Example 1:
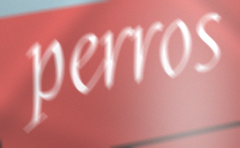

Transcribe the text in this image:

perros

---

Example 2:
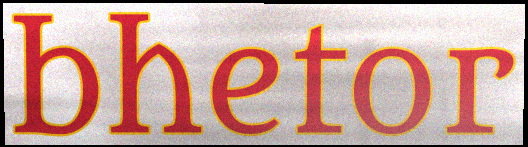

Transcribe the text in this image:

bhetor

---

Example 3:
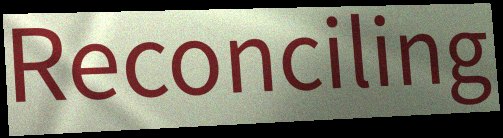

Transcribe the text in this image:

Reconciling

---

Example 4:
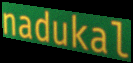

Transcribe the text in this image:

nadukal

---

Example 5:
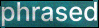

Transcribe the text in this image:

phrased